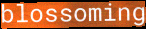
blossoming